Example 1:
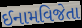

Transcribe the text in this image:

ઈનામવિજેતા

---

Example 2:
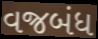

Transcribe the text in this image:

વજ્રબંધ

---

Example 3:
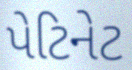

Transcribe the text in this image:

પેટિનેટ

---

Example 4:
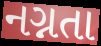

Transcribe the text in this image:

નગ્નતા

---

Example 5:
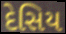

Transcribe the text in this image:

દેસિય